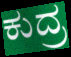
ಕುದ್ರ